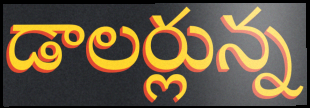
డాలర్లున్న